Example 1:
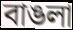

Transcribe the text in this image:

বাঙলা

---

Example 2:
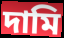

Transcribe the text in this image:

দামি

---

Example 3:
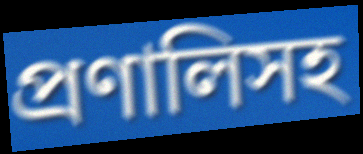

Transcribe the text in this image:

প্রণালিসহ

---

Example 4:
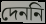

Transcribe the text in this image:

দেননি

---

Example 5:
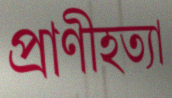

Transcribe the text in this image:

প্রাণীহত্যা